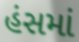
હંસમાં